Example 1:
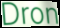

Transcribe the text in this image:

Dron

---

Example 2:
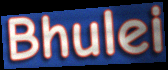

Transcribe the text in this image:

Bhulei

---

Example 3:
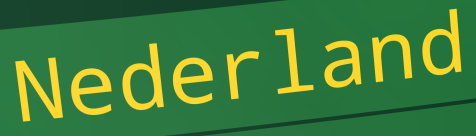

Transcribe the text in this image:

Nederland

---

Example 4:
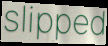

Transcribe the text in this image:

slipped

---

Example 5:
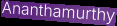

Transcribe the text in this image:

Ananthamurthy